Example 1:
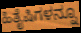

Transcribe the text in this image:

ಹಿತೈಷಿಗಳನ್ನೂ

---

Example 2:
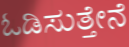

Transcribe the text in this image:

ಓಡಿಸುತ್ತೇನೆ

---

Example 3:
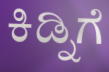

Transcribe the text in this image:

ಕಿಡ್ನಿಗೆ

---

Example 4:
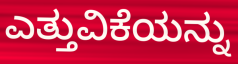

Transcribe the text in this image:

ಎತ್ತುವಿಕೆಯನ್ನು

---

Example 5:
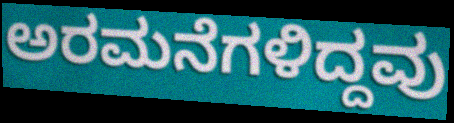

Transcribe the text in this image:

ಅರಮನೆಗಳಿದ್ದವು